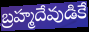
బ్రహ్మదేవుడికే